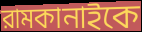
রামকানাইকে